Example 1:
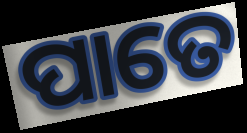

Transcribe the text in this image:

ପାତେ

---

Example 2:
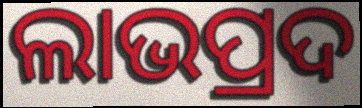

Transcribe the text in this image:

ଲାଭପ୍ରଦ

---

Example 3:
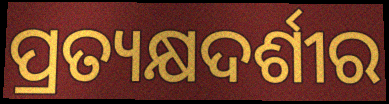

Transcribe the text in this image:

ପ୍ରତ୍ୟକ୍ଷଦର୍ଶୀର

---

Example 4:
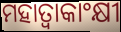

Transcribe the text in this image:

ମହାତ୍ୱାକାଂକ୍ଷୀ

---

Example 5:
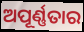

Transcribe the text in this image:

ଅପୂର୍ଣ୍ଣତାର